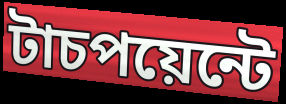
টাচপয়েন্টে